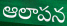
ఆలాపన